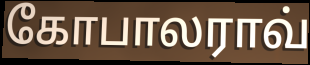
கோபாலராவ்